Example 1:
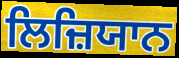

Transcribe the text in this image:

ਲਿਜ਼ਿਯਾਨ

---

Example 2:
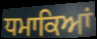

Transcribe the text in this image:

ਧਮਾਕਿਆਂ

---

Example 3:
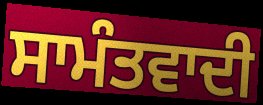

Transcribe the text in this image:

ਸਾਮੰਤਵਾਦੀ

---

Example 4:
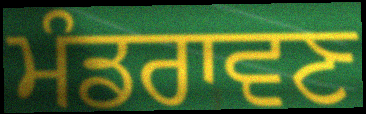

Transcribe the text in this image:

ਮੰਡਰਾਵਣ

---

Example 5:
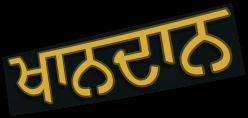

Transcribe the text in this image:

ਖਾਨਦਾਨ